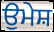
ਉਮੇਸ਼